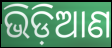
ଭିଡ଼ିଆଣ